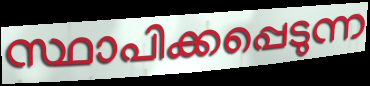
സ്ഥാപിക്കപ്പെടുന്ന